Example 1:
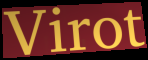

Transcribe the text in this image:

Virot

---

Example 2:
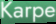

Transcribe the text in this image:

Karpe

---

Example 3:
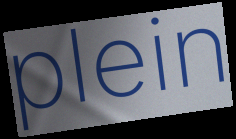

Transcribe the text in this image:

plein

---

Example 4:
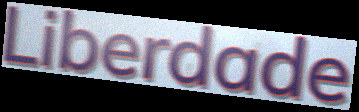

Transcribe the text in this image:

Liberdade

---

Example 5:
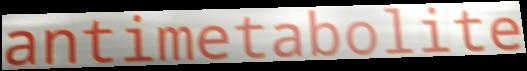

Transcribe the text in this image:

antimetabolite